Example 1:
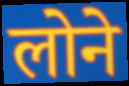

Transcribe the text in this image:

लोने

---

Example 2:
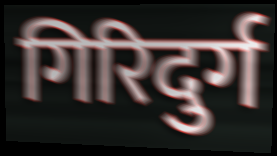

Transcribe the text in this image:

गिरिदुर्ग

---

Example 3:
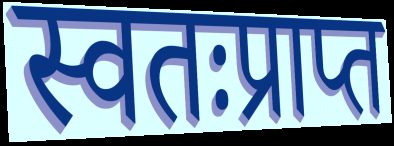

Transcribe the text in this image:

स्वतःप्राप्त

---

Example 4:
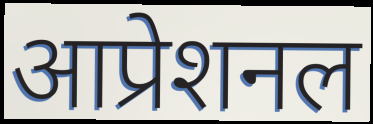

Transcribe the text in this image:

आप्रेशनल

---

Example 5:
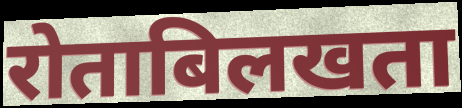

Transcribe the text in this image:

रोताबिलखता